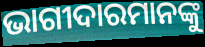
ଭାଗୀଦାରମାନଙ୍କୁ